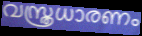
വസ്ത്രധാരണം